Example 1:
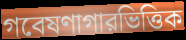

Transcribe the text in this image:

গবেষণাগারভিত্তিক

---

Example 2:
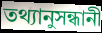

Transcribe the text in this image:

তথ্যানুসন্ধানী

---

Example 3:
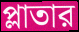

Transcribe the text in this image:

প্লাতার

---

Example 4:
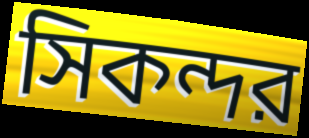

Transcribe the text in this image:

সিকন্দর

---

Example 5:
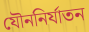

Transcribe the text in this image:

যৌননির্যাতন